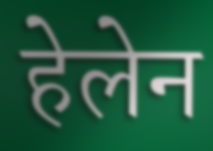
हेलेन